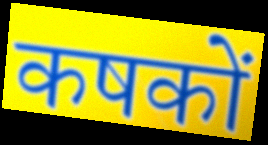
कषकों